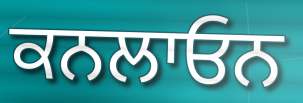
ਕਨਲਾਓਨ